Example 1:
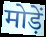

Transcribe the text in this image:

मोड़ें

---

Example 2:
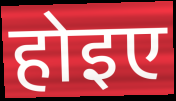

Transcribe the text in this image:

होइए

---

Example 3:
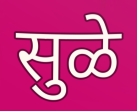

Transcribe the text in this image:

सुळे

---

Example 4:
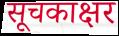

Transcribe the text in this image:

सूचकाक्षर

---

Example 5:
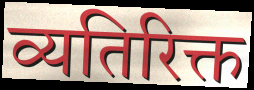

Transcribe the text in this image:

व्यतिरिक्त